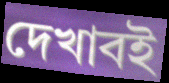
দেখাবই